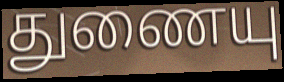
துணையு